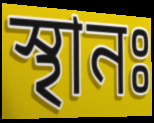
স্থানঃ